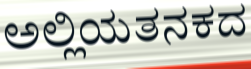
ಅಲ್ಲಿಯತನಕದ